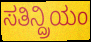
ಸತಿನ್ದ್ರಿಯಂ